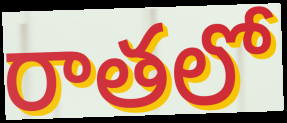
రాతలో